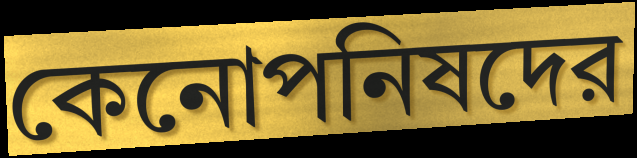
কেনোপনিষদের